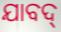
ଯାବଦ୍